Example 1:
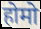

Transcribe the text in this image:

होमो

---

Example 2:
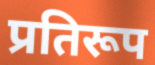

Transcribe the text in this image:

प्रतिरूप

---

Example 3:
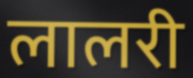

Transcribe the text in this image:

लालरी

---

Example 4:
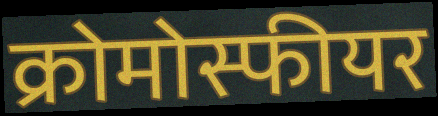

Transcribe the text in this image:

क्रोमोस्फीयर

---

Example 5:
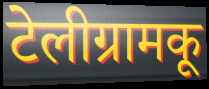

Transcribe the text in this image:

टेलीग्रामकू